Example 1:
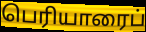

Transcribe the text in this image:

பெரியாரைப்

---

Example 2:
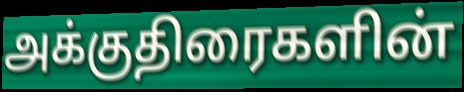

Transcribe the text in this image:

அக்குதிரைகளின்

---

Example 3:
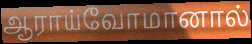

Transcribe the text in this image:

ஆராய்வோமானால்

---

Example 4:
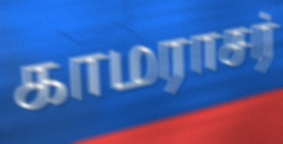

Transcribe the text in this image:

காமராசர்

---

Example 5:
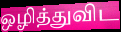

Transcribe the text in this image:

ஒழித்துவிட